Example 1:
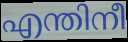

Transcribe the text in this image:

എന്തിനീ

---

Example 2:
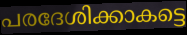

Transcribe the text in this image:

പരദേശിക്കാകട്ടെ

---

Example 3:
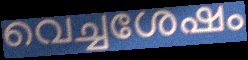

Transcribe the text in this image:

വെച്ചശേഷം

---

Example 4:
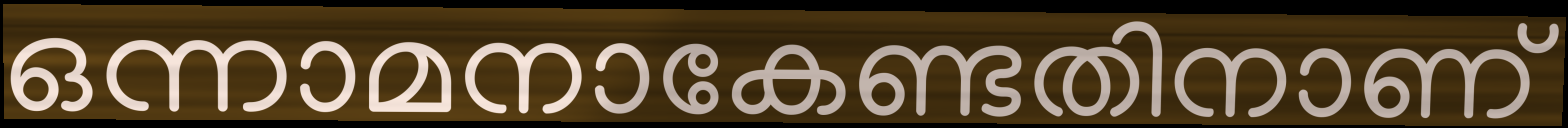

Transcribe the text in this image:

ഒന്നാമനാകേണ്ടതിനാണ്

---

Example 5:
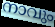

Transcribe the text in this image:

നാവും